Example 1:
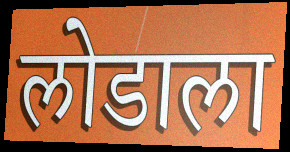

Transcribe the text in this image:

लोडाला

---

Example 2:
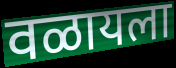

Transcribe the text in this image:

वळायला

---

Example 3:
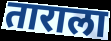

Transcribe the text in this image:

ताराला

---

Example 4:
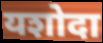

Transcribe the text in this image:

यशोदा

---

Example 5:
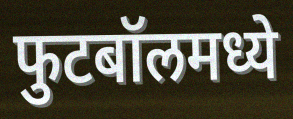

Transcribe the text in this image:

फुटबॉलमध्ये